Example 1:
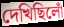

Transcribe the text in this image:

দেখিছিলোঁ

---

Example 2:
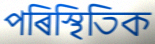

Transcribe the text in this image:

পৰিস্থিতিক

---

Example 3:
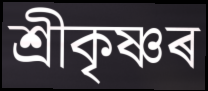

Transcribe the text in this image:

শ্ৰীকৃষ্ণৰ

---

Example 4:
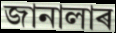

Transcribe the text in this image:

জানালাৰ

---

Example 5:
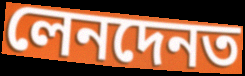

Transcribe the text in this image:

লেনদেনত